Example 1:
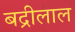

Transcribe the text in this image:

बद्रीलाल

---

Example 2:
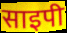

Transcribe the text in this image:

साइपी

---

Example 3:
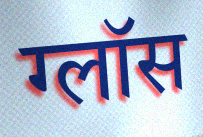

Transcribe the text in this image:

ग्लॉस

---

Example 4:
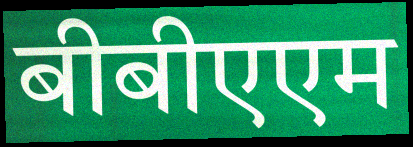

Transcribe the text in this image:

बीबीएएम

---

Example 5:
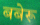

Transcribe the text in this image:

बबेरू